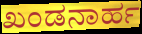
ಖಂಡನಾರ್ಹ